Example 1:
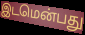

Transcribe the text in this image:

இடமென்பது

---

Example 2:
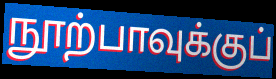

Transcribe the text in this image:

நூற்பாவுக்குப்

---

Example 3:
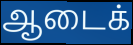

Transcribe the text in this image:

ஆடைக்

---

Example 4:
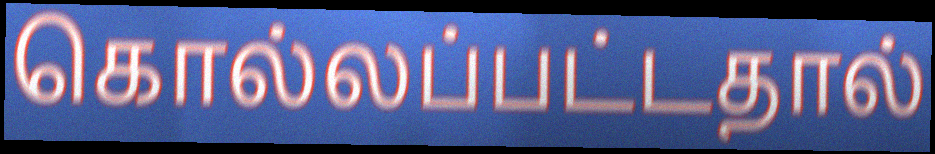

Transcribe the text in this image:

கொல்லப்பட்டதால்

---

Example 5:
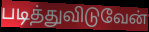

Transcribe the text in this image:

படித்துவிடுவேன்